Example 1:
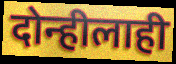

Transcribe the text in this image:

दोन्हीलाही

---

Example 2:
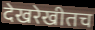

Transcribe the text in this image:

देखरेखीतच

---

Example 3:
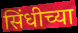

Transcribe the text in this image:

सिंधीच्या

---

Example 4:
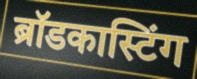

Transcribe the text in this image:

ब्रॉडकास्टिंग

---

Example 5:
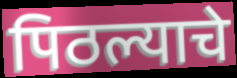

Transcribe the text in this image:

पिठल्याचे